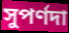
সুপর্ণদা